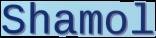
Shamol